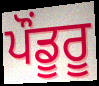
ਪੌਂਡੂਰੂ